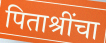
पिताश्रींचा